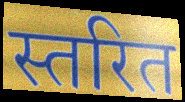
स्तरित